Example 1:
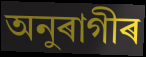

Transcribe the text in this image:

অনুৰাগীৰ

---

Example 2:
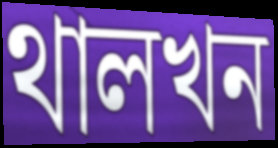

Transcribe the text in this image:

থালখন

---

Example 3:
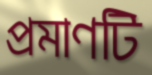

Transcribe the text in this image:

প্ৰমাণটি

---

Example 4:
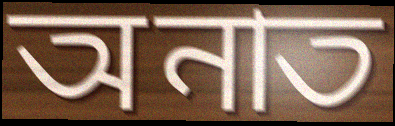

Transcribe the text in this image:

অনাত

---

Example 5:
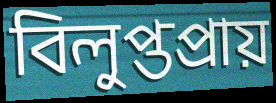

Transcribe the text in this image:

বিলুপ্তপ্ৰায়